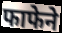
फाफेने